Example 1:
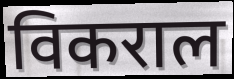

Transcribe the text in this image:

विकराल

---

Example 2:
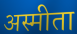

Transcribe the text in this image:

अस्मीता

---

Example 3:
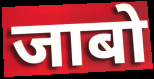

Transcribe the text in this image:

जाबो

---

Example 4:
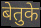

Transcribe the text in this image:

बेतुके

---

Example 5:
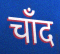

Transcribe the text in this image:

चाँद